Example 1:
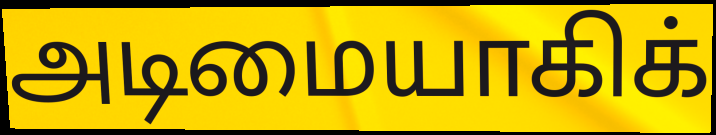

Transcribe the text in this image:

அடிமையாகிக்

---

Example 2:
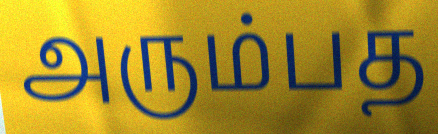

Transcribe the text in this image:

அரும்பத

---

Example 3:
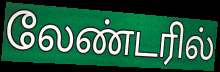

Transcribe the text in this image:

லேண்டரில்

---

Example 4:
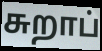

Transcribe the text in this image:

சுறாப்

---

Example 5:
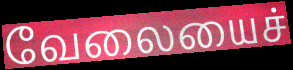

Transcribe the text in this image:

வேலையைச்